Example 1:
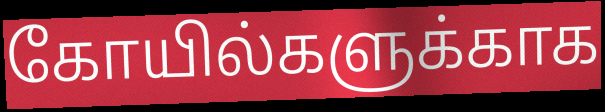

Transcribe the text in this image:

கோயில்களுக்காக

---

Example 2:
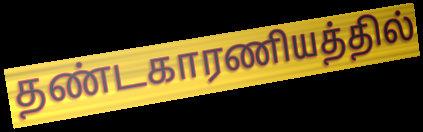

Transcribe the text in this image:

தண்டகாரணியத்தில்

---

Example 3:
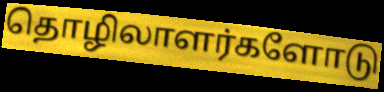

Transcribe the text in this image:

தொழிலாளர்களோடு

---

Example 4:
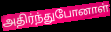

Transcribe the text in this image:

அதிர்ந்துபோனாள்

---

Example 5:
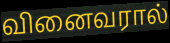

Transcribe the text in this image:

வினைவரால்